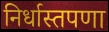
निर्धास्तपणा